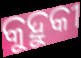
କୁହୁକୀ